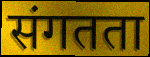
संगतता